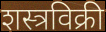
शस्त्रविक्री